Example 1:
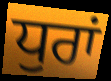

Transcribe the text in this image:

ਧੁਰਾਂ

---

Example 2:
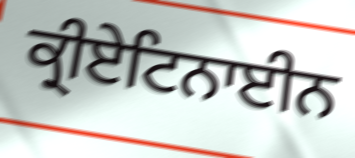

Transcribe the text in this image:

ਕ੍ਰੀਏਟਿਨਾਈਨ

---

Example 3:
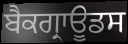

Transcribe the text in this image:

ਬੈਕਗ੍ਰਾਊਡਸ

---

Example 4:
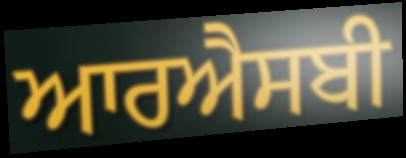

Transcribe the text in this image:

ਆਰਐਸਬੀ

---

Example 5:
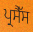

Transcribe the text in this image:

ਪ੍ਰਸੈੱਸ